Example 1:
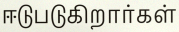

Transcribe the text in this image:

ஈடுபடுகிறார்கள்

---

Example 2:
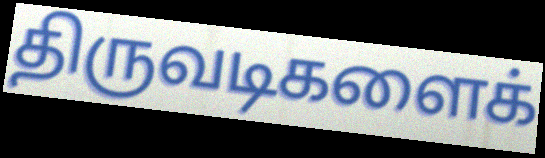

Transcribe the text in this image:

திருவடிகளைக்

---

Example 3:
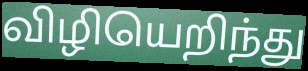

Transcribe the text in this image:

விழியெறிந்து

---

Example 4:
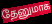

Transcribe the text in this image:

தேனுமாக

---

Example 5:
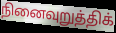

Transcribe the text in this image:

நினைவுறுத்திக்